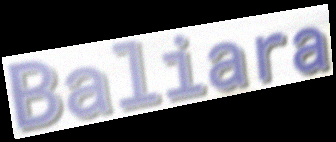
Baliara